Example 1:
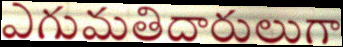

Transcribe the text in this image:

ఎగుమతిదారులుగా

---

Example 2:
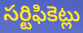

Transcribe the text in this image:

సర్టిఫికెట్లు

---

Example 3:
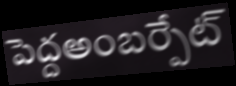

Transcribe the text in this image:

పెద్దఅంబర్పేట్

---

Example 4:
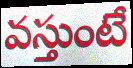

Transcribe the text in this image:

వస్తుంటే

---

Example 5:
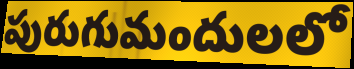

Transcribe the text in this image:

పురుగుమందులలో